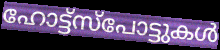
ഹോട്ട്സ്പോട്ടുകൾ